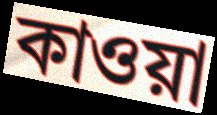
কাওয়া